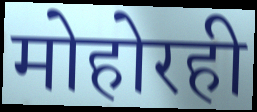
मोहोरही